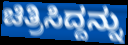
ಚಿತ್ರಿಸಿದ್ದನ್ನು